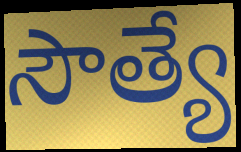
సౌత్యే